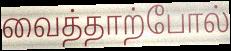
வைத்தாற்போல்